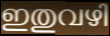
ഇതുവഴി